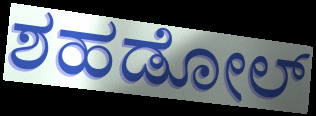
ಶಹಡೋಲ್